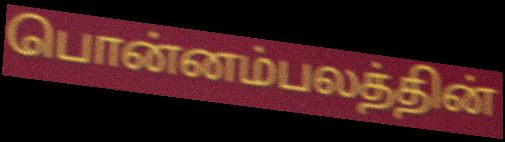
பொன்னம்பலத்தின்